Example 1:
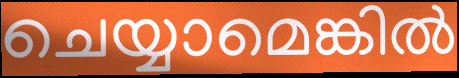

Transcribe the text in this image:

ചെയ്യാമെങ്കിൽ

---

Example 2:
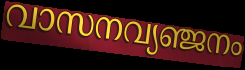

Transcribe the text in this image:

വാസനവ്യഞ്ജനം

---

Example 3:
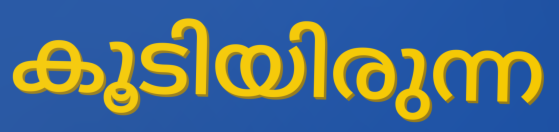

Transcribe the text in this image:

കൂടിയിരുന്ന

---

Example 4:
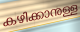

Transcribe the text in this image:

കഴിക്കാനുള്ള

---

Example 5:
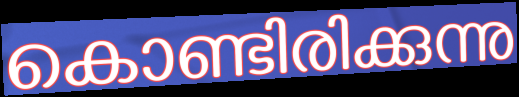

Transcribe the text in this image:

കൊണ്ടിരിക്കുന്നു